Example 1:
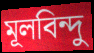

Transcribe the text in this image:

মূলবিন্দু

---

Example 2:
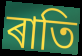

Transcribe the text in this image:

ৰাতি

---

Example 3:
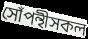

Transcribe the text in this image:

সোঁপন্থীসকল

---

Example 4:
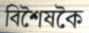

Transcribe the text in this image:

বিশৈষকৈ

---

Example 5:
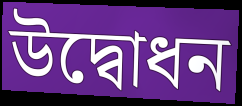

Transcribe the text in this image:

উদ্বোধন